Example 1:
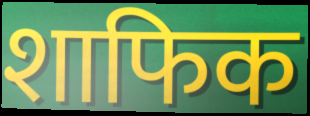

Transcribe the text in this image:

शाफिक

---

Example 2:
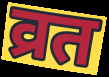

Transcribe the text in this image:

व्रत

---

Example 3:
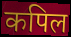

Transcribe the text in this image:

कपिल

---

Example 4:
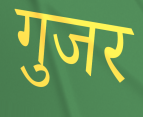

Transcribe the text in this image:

गुजर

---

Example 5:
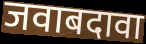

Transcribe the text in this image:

जवाबदावा